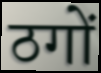
ठगों